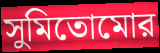
সুমিতোমোর